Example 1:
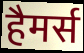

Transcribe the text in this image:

हैमर्स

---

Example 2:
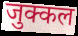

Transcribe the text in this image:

जुक्कल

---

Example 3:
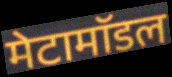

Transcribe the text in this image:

मेटामॉडल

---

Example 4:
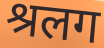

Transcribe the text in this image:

श्रलग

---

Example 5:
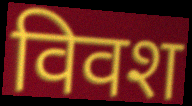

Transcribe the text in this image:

विवश